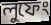
লুফেং